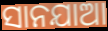
ସାନଯାଆ